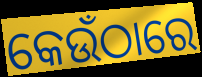
କେଉଁଠାରେ